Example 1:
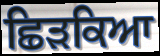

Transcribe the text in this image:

ਛਿੜਕਿਆ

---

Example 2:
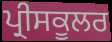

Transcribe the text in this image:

ਪ੍ਰੀਸਕੂਲਰ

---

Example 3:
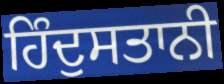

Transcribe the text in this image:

ਹਿੰਦੁਸਤਾਨੀ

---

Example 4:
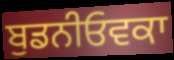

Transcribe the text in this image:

ਬੁਡਨੀਓਵਕਾ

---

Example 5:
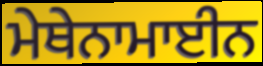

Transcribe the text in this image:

ਮੇਥੇਨਾਮਾਈਨ